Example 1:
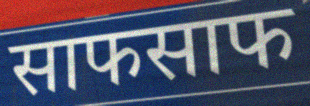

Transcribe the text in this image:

साफसाफ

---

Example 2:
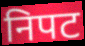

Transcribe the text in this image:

निपट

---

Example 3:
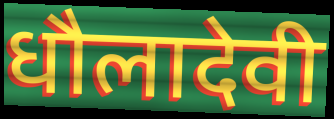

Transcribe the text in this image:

धौलादेवी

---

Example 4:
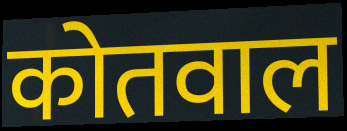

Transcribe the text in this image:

कोतवाल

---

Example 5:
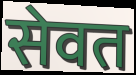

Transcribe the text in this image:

सेवत